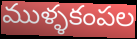
ముళ్ళకంపల